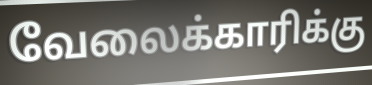
வேலைக்காரிக்கு